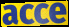
acce